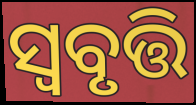
ସ୍ୱବୃତ୍ତି